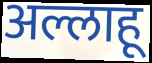
अल्लाहू